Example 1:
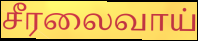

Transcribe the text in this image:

சீரலைவாய்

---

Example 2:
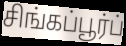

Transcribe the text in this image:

சிங்கப்பூர்ப்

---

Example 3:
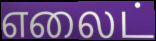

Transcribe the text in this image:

எலைட்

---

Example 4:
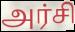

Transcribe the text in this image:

அர்சி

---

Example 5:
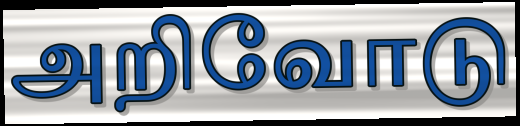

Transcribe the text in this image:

அறிவோடு